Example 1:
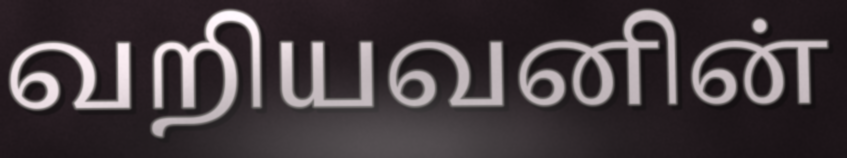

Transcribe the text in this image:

வறியவனின்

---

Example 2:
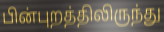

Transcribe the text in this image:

பின்புறத்திலிருந்து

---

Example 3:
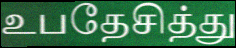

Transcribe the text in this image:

உபதேசித்து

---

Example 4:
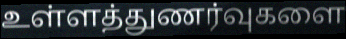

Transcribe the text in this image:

உள்ளத்துணர்வுகளை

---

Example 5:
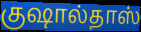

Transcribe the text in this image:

குஷால்தாஸ்